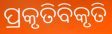
ପ୍ରକୃତିବିକୃତି